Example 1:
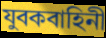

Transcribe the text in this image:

যুবকবাহিনী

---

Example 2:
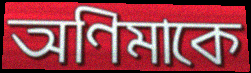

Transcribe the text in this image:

অণিমাকে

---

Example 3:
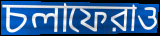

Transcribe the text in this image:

চলাফেরাও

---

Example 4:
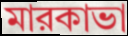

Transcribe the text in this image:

মারকাভা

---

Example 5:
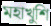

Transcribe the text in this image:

মহাখুশি